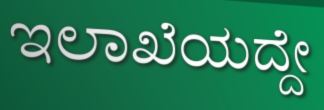
ಇಲಾಖೆಯದ್ದೇ